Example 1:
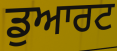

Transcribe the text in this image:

ਡੁਆਰਟ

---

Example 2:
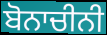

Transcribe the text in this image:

ਬੋਨਾਚੀਨੀ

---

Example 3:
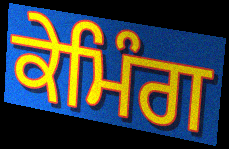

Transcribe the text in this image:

ਕੇਮਿੰਗ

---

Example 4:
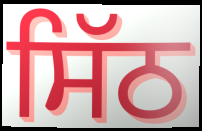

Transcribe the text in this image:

ਸਿੱਠ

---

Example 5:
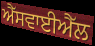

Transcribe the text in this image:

ਐੱਸਵਾਈਐੱਲ